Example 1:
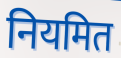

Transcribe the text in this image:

नियमित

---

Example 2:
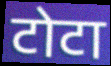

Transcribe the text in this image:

टोटा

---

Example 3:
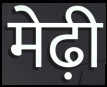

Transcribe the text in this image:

मेढ़ी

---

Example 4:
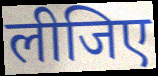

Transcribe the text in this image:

लीजिए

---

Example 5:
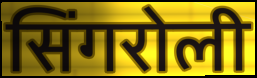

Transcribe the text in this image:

सिंगरोली